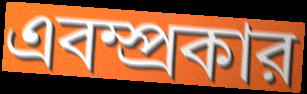
এবম্প্রকার